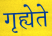
गृह्येते